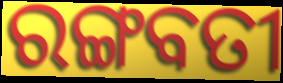
ରଙ୍ଗବତୀ